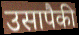
उसापैकी